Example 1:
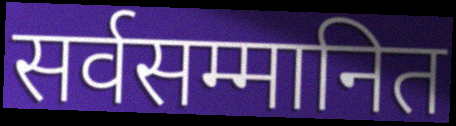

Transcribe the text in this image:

सर्वसम्मानित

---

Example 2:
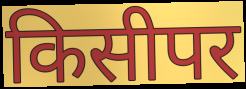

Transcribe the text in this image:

किसीपर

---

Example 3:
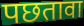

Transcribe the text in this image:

पछतावा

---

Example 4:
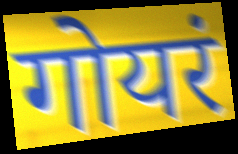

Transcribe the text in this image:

गोयरं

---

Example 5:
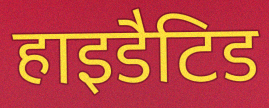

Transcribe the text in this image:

हाइडैटिड